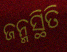
ଜନ୍ମସ୍ଥିତି